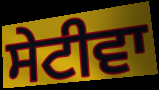
ਸੇਟੀਵਾ